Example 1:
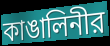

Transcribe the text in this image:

কাঙালিনীর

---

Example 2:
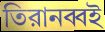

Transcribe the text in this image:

তিরানব্বই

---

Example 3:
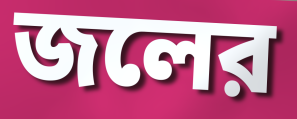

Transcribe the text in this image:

জলের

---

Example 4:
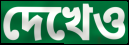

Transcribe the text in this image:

দেখেও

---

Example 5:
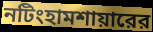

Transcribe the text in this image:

নটিংহামশায়ারের